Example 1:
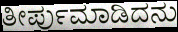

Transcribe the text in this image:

ತೀರ್ಪುಮಾಡಿದನು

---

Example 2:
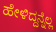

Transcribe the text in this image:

ಹೇಳಿದ್ದನ್ನೆಲ್ಲ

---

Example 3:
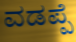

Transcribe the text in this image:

ವಡಪ್ಪೆ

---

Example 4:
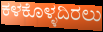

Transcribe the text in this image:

ಕಳಕೊಳ್ಳದಿರಲು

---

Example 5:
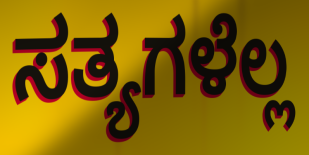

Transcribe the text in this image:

ಸತ್ಯಗಳೆಲ್ಲ